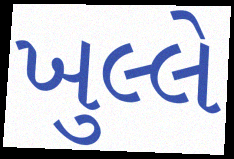
ખુલ્લે